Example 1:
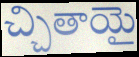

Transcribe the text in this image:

చ్చితాయై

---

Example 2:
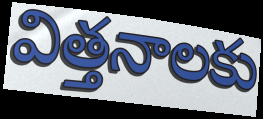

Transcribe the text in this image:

విత్తనాలకు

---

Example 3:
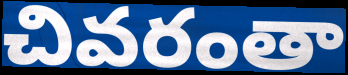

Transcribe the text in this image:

చివరంతా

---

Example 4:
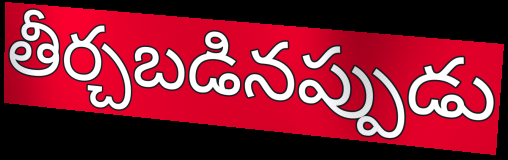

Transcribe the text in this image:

తీర్చబడినప్పుడు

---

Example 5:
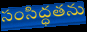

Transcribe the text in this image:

సంసిద్ధతను